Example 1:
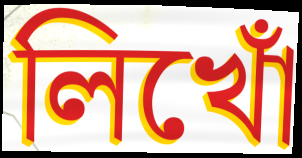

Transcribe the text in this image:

লিখোঁ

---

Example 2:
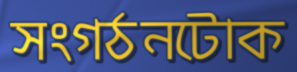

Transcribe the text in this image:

সংগঠনটোক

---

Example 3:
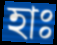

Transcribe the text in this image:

হাঃ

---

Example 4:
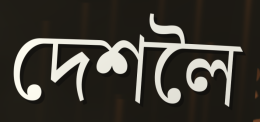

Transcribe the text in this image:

দেশলৈ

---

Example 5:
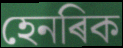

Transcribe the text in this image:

হেনৰিক